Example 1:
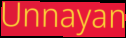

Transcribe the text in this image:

Unnayan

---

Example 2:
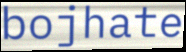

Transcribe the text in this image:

bojhate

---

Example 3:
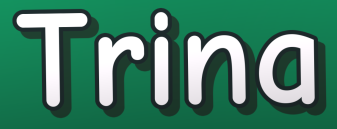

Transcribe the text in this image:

Trina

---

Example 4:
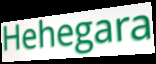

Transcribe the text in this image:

Hehegara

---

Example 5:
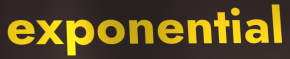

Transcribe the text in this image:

exponential